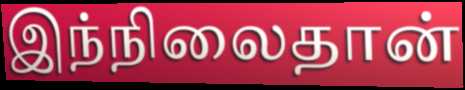
இந்நிலைதான்